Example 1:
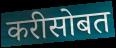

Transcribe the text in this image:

करीसोबत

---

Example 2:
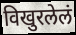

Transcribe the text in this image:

विखुरलेलं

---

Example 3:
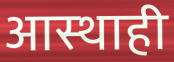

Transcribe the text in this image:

आस्थाही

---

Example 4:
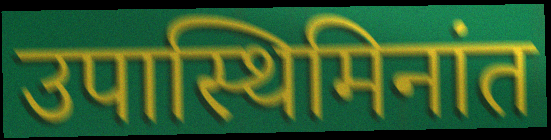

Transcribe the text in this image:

उपास्थिमिनांत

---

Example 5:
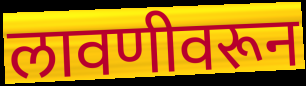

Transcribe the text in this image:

लावणीवरून